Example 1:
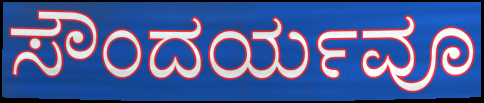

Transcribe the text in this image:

ಸೌಂದರ್ಯವೂ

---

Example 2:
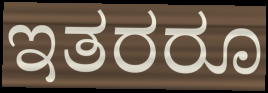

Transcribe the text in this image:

ಇತರರೂ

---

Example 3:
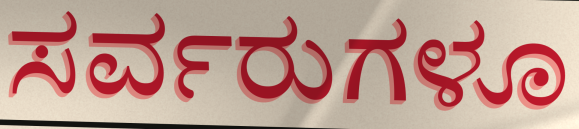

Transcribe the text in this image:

ಸರ್ವರುಗಳೂ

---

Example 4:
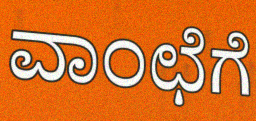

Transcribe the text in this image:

ವಾಂಛೆಗೆ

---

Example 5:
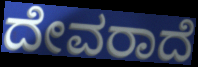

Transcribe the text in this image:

ದೇವರಾದೆ